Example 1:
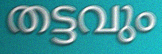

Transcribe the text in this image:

തട്ടവും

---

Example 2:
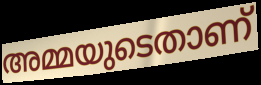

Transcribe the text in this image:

അമ്മയുടെതാണ്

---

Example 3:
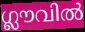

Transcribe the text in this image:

ഗ്ലൗവിൽ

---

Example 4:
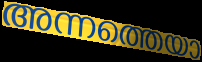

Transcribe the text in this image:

അന്നത്തെയാ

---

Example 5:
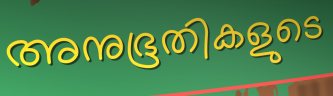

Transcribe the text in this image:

അനുഭൂതികളുടെ